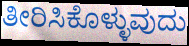
ತೀರಿಸಿಕೊಳ್ಳುವುದು